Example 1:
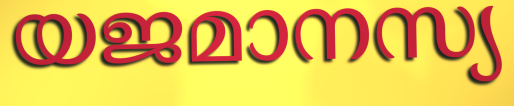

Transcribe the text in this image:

യജമാനസ്യ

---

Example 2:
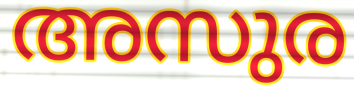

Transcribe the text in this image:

അസുര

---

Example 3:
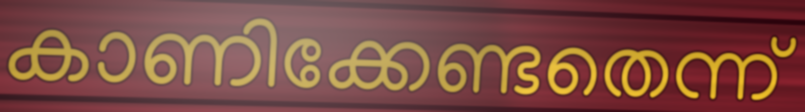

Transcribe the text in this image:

കാണിക്കേണ്ടതെന്ന്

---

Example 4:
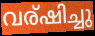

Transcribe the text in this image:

വര്ഷിച്ചു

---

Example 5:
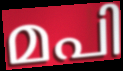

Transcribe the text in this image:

മപി